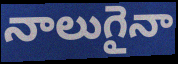
నాలుగైనా